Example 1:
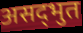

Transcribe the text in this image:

असद्भुत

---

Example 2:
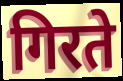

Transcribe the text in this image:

गिरते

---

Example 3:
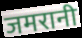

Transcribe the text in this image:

जमरानी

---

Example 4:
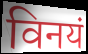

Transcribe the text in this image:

विनयं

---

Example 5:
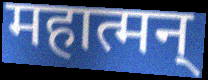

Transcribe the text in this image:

महात्मन्